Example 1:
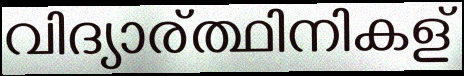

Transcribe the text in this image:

വിദ്യാര്ത്ഥിനികള്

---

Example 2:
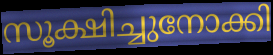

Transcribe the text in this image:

സൂക്ഷിച്ചുനോക്കി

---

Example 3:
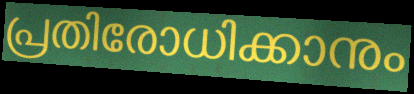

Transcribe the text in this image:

പ്രതിരോധിക്കാനും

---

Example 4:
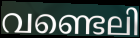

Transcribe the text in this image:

വണ്ടെലി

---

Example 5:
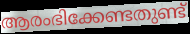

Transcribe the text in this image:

ആരംഭിക്കേണ്ടതുണ്ട്